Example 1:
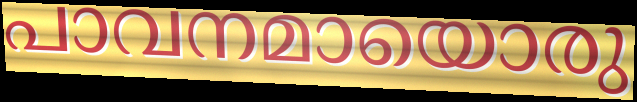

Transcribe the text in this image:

പാവനമായൊരു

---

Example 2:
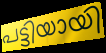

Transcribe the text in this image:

പട്ടിയായി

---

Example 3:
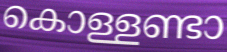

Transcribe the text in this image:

കൊള്ളണ്ടാ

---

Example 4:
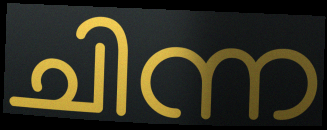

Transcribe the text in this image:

ചിന്ന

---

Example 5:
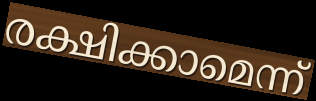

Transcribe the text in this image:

രക്ഷിക്കാമെന്ന്